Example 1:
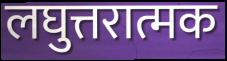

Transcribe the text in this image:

लघुत्तरात्मक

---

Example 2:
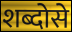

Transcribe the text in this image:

शब्दोसे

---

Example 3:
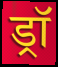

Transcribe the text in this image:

ड्रॉ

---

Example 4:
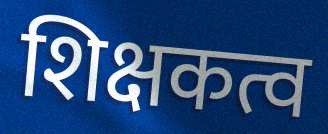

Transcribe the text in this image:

शिक्षकत्व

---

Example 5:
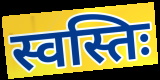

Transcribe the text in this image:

स्वस्तिः